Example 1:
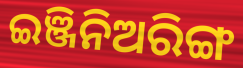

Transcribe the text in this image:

ଇଞ୍ଜିନିଅରିଙ୍ଗ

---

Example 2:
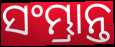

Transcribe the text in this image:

ସଂମ୍ଭ୍ରାନ୍ତ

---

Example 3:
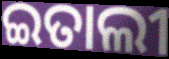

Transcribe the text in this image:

ଇତାଲୀ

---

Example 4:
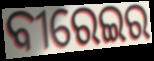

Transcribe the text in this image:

ବୀରେଇର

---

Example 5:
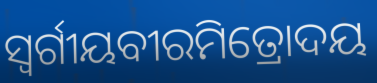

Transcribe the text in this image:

ସ୍ୱର୍ଗୀୟବୀରମିତ୍ରୋଦୟ